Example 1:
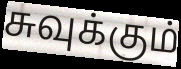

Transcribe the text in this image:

சுவுக்கும்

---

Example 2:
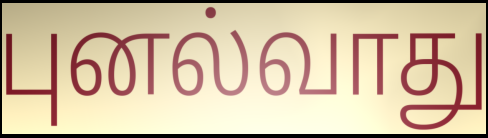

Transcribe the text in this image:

புனல்வாது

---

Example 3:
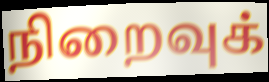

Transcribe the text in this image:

நிறைவுக்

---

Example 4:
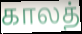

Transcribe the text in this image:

காலத்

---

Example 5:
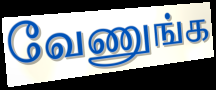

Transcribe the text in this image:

வேணுங்க